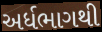
અર્ધભાગથી